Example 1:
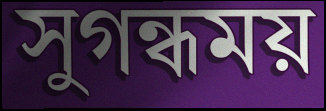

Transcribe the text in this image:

সুগন্ধময়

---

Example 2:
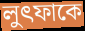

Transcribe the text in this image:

লুৎফাকে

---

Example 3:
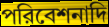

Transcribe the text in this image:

পরিবেশনাদি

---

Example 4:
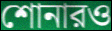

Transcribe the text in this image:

শোনারও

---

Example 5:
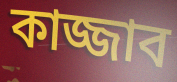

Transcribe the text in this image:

কাজ্জাব